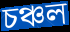
চঞ্চল